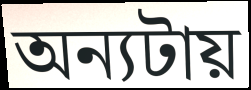
অন্যটায়